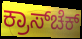
ಕ್ರಾಸ್‌ಚೆಕ್